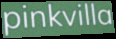
pinkvilla